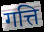
गत्ति